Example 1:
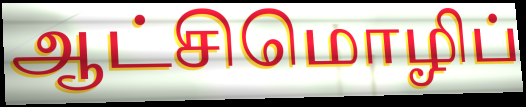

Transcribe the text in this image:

ஆட்சிமொழிப்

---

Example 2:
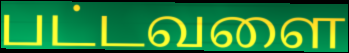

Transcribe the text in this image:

பட்டவளை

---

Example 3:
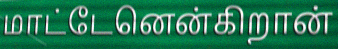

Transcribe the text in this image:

மாட்டேனென்கிறான்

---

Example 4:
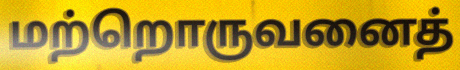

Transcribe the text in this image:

மற்றொருவனைத்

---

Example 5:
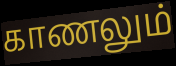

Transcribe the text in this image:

காணலும்